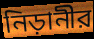
নিড়ানীর